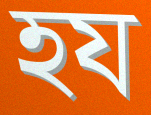
হয